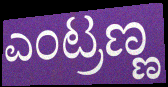
ಎಂಟ್ರಣ್ಣ